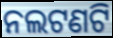
ନଲଟଣଟି